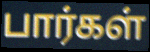
பார்கள்